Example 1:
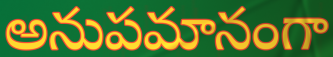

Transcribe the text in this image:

అనుపమానంగా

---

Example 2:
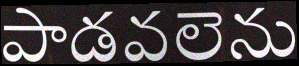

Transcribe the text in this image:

పాడవలెను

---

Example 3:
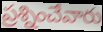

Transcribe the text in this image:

ప్రశ్నించేవారు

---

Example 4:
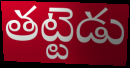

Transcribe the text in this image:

తట్టెడు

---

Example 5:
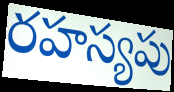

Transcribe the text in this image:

రహస్యపు